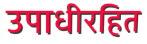
उपाधीरहित